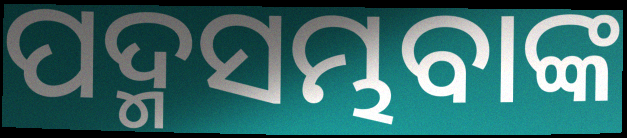
ପଦ୍ମସମ୍ଭବାଙ୍କ